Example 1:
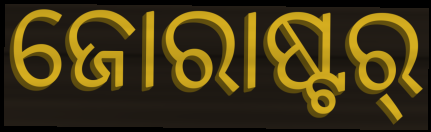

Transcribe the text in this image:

ଜୋରାଷ୍ଟର୍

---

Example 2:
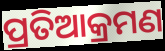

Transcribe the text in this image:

ପ୍ରତିଆକ୍ରମଣ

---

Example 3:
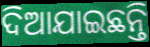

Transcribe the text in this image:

ଦିଆଯାଇଛନ୍ତି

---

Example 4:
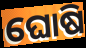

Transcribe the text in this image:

ଘୋଷି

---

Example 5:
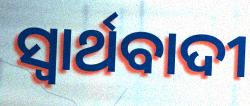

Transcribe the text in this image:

ସ୍ୱାର୍ଥବାଦୀ